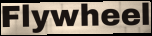
Flywheel